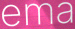
ema